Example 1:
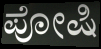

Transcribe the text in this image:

ಪೋಷಿ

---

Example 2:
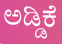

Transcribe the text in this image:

ಅಡ್ಡಿಕೆ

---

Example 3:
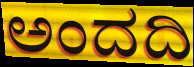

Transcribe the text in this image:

ಅಂದದಿ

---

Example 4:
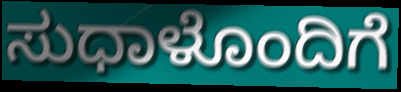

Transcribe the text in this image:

ಸುಧಾಳೊಂದಿಗೆ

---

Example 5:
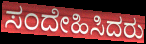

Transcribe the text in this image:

ಸಂದೇಹಿಸಿದರು